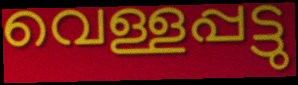
വെള്ളപ്പട്ടു